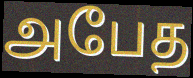
அபேத